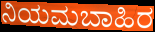
ನಿಯಮಬಾಹಿರ